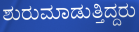
ಶುರುಮಾಡುತ್ತಿದ್ದರು